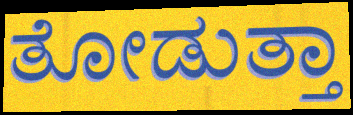
ತೋಡುತ್ತಾ